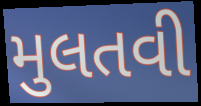
મુલતવી